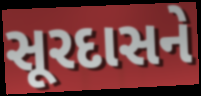
સૂરદાસને